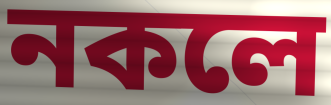
নকলে